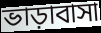
ভাড়াবাসা